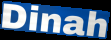
Dinah